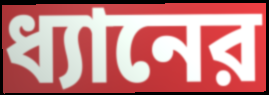
ধ্যানের